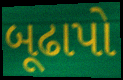
બૂઢાપો